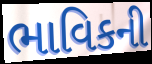
ભાવિકની